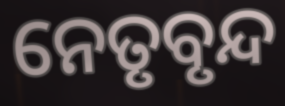
ନେତୃବୃନ୍ଦ